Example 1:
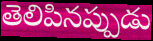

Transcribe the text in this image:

తెలిపినప్పుడు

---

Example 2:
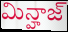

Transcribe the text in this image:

మిన్హాజ్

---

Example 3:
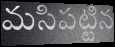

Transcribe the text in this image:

మసిపట్టిన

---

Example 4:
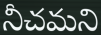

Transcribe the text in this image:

నీచమని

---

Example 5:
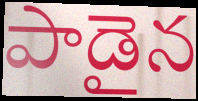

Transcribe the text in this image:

పాడైన